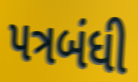
પત્રબંધી